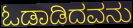
ಓಡಾಡಿದವನು